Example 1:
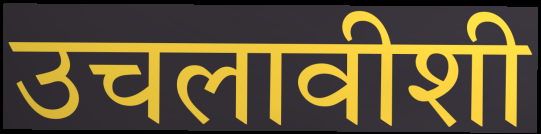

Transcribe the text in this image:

उचलावीशी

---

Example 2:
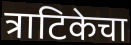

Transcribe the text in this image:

त्राटिकेचा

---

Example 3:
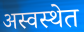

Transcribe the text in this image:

अस्वस्थेत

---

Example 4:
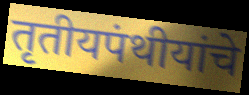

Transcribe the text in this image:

तृतीयपंथीयांचे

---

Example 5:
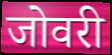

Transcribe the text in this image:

जोवरी